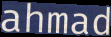
ahmad